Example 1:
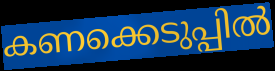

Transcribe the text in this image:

കണക്കെടുപ്പിൽ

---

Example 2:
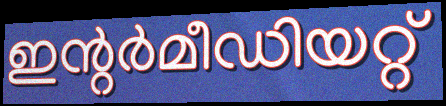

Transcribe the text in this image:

ഇന്റർമീഡിയറ്റ്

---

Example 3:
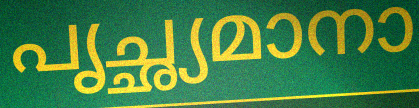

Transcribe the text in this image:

പൃച്ഛ്യമാനാ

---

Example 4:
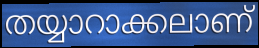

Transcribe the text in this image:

തയ്യാറാക്കലാണ്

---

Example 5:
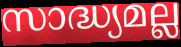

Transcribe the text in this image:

സാദ്ധ്യമല്ല